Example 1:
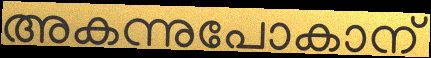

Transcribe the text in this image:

അകന്നുപോകാന്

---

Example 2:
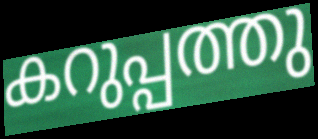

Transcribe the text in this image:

കറുപ്പത്തു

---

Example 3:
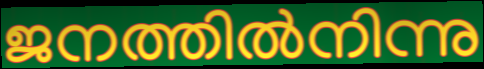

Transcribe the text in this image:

ജനത്തിൽനിന്നു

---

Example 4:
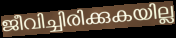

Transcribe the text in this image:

ജീവിച്ചിരിക്കുകയില്ല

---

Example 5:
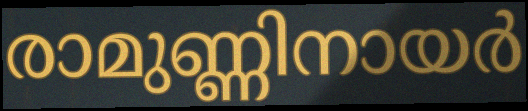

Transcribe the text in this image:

രാമുണ്ണിനായർ